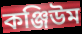
কঞ্জিউম